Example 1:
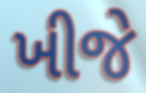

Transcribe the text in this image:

ખીજે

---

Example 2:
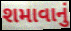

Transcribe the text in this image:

શમાવાનું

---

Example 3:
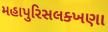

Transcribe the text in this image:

મહાપુરિસલક્ખણા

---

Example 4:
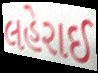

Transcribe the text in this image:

લહેરાઈ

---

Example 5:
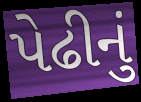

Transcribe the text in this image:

પેઢીનું